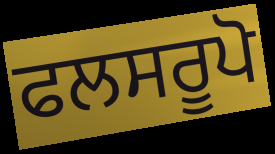
ਫਲਸਰੂਪੋ